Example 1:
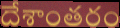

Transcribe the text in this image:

దేశాంతరం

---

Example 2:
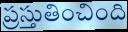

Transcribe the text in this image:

ప్రస్తుతించింది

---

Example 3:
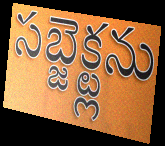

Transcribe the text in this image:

సబ్జెక్ట్లను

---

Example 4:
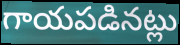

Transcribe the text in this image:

గాయపడినట్లు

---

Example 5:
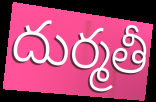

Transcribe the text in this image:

దుర్మతీ